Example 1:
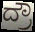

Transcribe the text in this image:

ದ್ರೌ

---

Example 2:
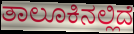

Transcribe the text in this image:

ತಾಲೂಕಿನಲ್ಲಿದೆ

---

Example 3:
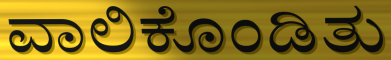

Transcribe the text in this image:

ವಾಲಿಕೊಂಡಿತು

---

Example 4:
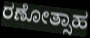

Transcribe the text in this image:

ರಣೋತ್ಸಾಹ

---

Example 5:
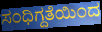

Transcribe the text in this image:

ಸಂಧಿಗ್ದತೆಯಿಂದ